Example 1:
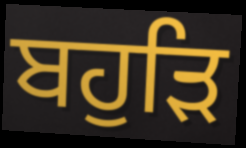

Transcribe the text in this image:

ਬਹੁੜਿ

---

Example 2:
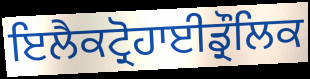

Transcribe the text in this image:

ਇਲੈਕਟ੍ਰੋਹਾਈਡ੍ਰੌਲਿਕ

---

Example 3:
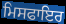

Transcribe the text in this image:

ਮਿਸਫਾਇਰ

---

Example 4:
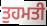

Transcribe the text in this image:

ਤੁਹਮਤੀ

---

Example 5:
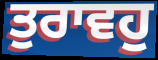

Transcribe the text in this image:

ਤੁਰਾਵਹੁ